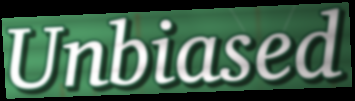
Unbiased